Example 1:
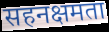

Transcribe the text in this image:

सहनक्षमता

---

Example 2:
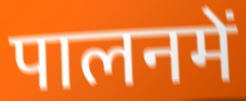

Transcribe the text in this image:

पालनमें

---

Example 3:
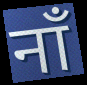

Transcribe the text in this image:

नाँ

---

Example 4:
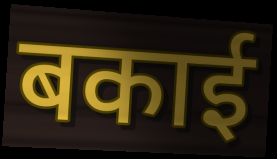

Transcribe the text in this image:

बकाई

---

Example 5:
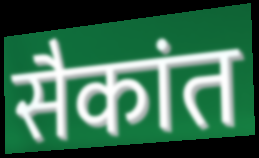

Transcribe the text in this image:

सैकांत